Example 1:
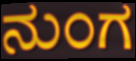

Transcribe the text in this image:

ನುಂಗ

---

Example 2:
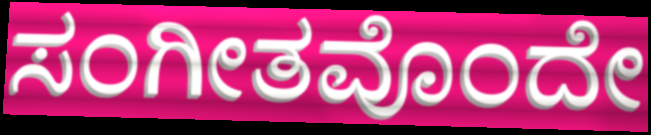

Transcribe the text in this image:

ಸಂಗೀತವೊಂದೇ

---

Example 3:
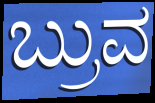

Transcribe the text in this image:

ಬ್ರುವ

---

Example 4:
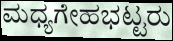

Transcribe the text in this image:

ಮಧ್ಯಗೇಹಭಟ್ಟರು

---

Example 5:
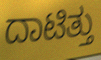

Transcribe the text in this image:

ದಾಟಿತ್ತು